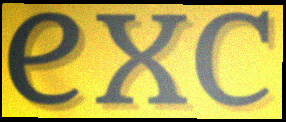
exc